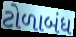
ટોળાબંધ